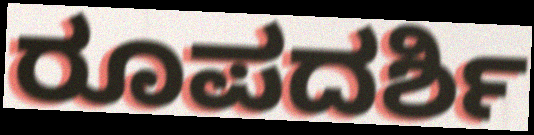
ರೂಪದರ್ಶಿ